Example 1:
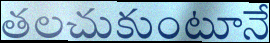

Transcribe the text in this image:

తలచుకుంటూనే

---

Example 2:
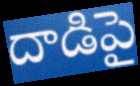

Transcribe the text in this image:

దాడిపై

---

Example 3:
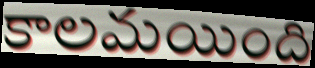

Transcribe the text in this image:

కాలమయింది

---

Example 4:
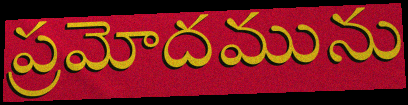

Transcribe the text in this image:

ప్రమోదమును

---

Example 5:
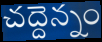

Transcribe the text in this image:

చద్దెన్నం